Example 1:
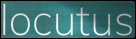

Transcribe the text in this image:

locutus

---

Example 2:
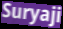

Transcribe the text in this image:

Suryaji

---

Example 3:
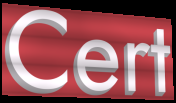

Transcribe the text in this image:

Cert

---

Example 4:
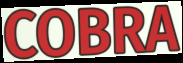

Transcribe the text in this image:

COBRA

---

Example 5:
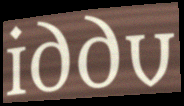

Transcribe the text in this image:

iddu